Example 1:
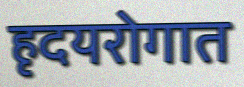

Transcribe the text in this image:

हृदयरोगात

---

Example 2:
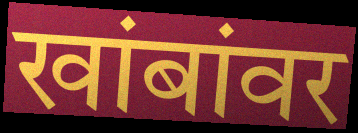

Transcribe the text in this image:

खांबांवर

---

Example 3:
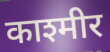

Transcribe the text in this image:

काश्मीर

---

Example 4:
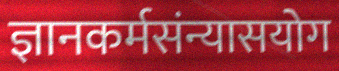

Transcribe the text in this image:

ज्ञानकर्मसंन्यासयोग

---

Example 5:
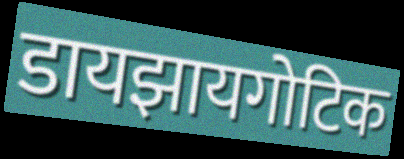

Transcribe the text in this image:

डायझायगोटिक